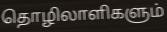
தொழிலாளிகளும்